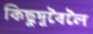
কিছুদূৰৈলৈ